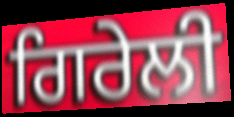
ਗਿਰੇਲੀ